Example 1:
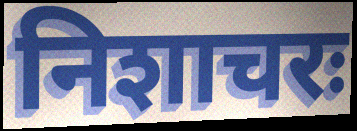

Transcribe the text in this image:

निशाचरः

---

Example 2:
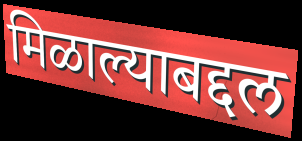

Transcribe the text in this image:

मिळाल्याबद्दल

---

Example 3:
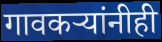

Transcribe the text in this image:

गावकऱ्यांनीही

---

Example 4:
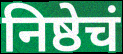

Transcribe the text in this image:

निष्ठेचं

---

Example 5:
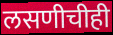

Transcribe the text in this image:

लसणीचीही